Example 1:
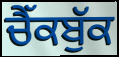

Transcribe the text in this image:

ਚੈੱਕਬੁੱਕ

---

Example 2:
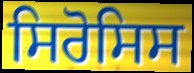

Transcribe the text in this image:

ਸਿਰੋਸਿਸ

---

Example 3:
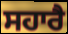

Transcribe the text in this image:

ਸਹਾਰੈ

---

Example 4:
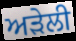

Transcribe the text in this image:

ਅੜੇਲੀ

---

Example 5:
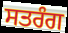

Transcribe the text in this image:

ਸਤਰੰਗ